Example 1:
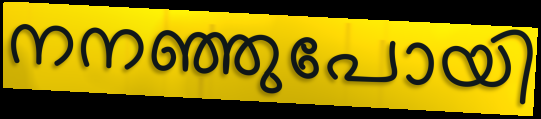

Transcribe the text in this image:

നനഞ്ഞുപോയി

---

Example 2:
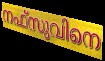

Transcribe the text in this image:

നഫ്സുവിനെ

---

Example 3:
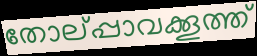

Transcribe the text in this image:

തോല്പ്പാവക്കൂത്ത്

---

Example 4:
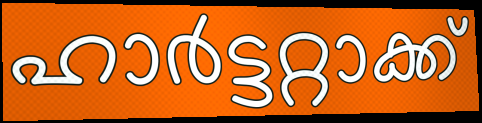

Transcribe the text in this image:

ഹാർട്ടറ്റാക്ക്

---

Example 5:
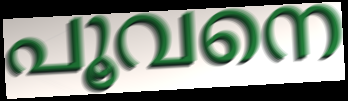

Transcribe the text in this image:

പൂവനെ